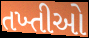
તખ્તીઓ